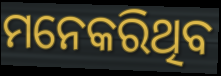
ମନେକରିଥିବ